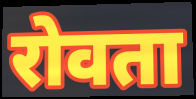
रोवता